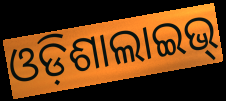
ଓଡ଼ିଶାଲାଇଭ୍